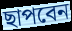
ছাপবেন